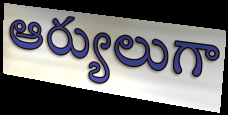
ఆర్యులుగా